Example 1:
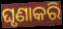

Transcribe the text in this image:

ଘୃଣାକରି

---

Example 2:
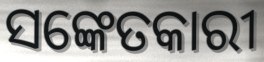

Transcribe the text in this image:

ସଙ୍କେତକାରୀ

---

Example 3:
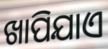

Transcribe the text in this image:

ଖାପିଯାଏ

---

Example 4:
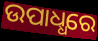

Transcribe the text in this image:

ଉପାଧ୍ଧରେ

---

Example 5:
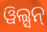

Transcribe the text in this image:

ୱିଲ୍ସନ୍